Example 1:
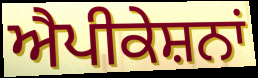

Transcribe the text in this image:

ਐਪੀਕੇਸ਼ਨਾਂ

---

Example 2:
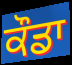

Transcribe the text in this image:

ਕੌਡਾ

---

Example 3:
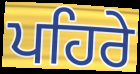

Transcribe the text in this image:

ਪਹਿਰੇ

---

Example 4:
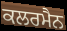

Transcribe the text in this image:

ਕਲਰਮੈਨ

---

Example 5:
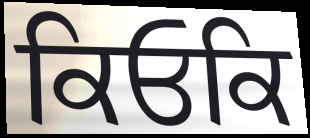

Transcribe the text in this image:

ਕਿਓਕਿ